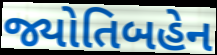
જ્યોતિબહેન